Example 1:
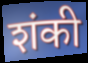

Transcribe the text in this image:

शंकी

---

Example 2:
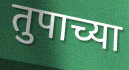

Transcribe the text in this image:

तुपाच्या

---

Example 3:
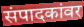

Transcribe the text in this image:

संपादकांवर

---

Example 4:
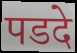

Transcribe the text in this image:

पडदे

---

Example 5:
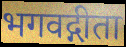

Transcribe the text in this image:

भगवद्गीता